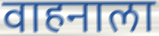
वाहनाला